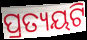
ପ୍ରତ୍ୟୟଟି